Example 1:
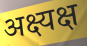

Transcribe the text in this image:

अक्ष्यक्ष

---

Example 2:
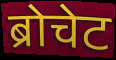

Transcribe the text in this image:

ब्रोचेट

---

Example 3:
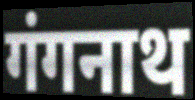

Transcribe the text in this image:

गंगनाथ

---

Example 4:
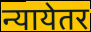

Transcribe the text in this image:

न्यायेतर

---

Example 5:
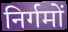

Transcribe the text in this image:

निर्गमों